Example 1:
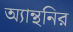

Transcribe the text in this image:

অ্যান্থনির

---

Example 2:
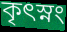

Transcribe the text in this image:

কৃৎস্নং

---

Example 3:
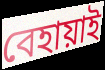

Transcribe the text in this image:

বেহায়াই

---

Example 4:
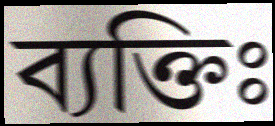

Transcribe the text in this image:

ব্যক্তিঃ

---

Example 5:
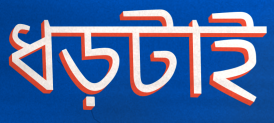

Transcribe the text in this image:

ধড়টাই